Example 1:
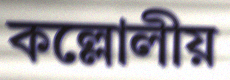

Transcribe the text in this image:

কল্লোলীয়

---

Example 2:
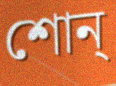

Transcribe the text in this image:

শোন্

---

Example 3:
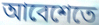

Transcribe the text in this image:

আবেশেতে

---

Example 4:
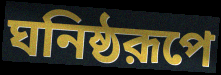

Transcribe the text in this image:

ঘনিষ্ঠরূপে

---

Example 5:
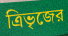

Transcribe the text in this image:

ত্রিভৃজের